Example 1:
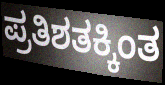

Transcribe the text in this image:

ಪ್ರತಿಶತಕ್ಕಿಂತ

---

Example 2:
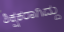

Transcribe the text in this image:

ಶಿಕ್ಷಕರಾಗಿದ್ದು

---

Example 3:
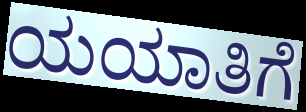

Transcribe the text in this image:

ಯಯಾತಿಗೆ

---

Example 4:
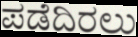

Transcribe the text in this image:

ಪಡೆದಿರಲು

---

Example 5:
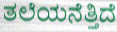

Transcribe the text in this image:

ತಲೆಯನೆತ್ತಿದೆ